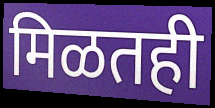
मिळतही